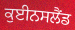
ਕੁਈਨਸਲੈਂਡ